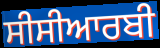
ਸੀਸੀਆਰਬੀ